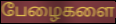
பேழைகளை